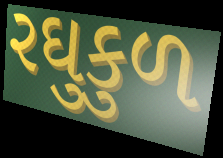
રઘુકુળ